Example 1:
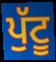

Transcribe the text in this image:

ਪੁੱਟੂ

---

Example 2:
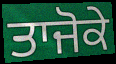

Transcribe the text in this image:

ਤਾਜੋਕੇ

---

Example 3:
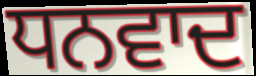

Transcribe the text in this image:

ਧਨਵਾਦ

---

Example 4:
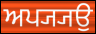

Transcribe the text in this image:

ਅਪ੍ਯ੍ਯਉ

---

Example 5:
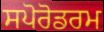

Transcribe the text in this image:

ਸਪੋਰੋਡਰਮ